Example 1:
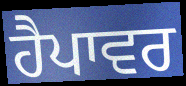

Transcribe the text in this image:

ਹੈਪਾਵਰ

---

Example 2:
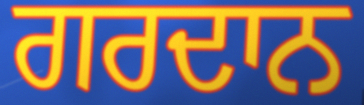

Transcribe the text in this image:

ਗਰਦਾਨ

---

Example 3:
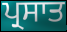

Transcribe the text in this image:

ਪ੍ਰਸਾਤ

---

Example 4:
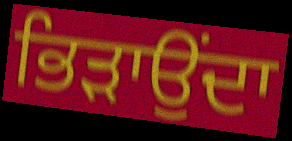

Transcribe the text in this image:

ਭਿੜਾਉਂਦਾ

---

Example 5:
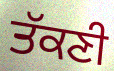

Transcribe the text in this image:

ਤੱਕਣੀ